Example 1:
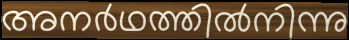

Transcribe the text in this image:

അനർഥത്തിൽനിന്നു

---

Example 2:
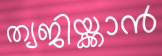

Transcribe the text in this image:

ത്യജിയ്ക്കാൻ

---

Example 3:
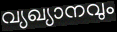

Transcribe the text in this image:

വ്യഖ്യാനവും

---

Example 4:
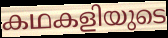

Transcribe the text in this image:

കഥകളിയുടെ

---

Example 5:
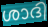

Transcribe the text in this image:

ശാദി